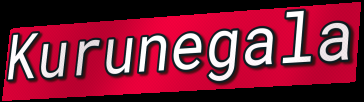
Kurunegala